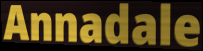
Annadale